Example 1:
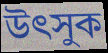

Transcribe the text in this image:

উৎসুক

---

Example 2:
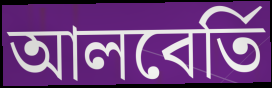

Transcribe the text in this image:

আলবের্তি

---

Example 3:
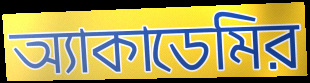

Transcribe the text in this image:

অ্যাকাডেমির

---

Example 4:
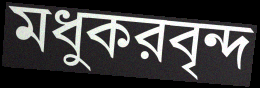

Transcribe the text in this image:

মধুকরবৃন্দ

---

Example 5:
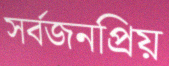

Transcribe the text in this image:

সর্বজনপ্রিয়